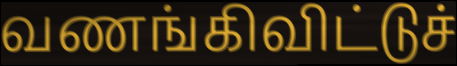
வணங்கிவிட்டுச்